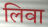
लिवा